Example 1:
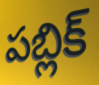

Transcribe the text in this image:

పబ్లిక్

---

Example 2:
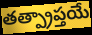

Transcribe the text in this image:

తత్ప్రాప్తయే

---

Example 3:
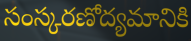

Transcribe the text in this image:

సంస్కరణోద్యమానికి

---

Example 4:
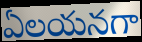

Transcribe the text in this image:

ఏలయనగా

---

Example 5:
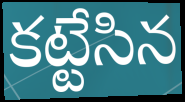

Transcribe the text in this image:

కట్టేసిన